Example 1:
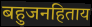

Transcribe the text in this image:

बहुजनहिताय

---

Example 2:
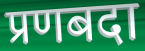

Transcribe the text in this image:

प्रणबदा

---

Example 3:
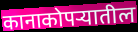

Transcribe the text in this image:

कानाकोपऱ्यातील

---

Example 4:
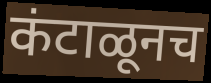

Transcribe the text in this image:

कंटाळूनच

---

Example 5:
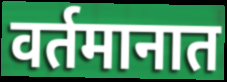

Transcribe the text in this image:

वर्तमानात